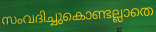
സംവദിച്ചുകൊണ്ടല്ലാതെ